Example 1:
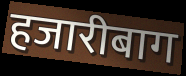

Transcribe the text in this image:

हजारीबाग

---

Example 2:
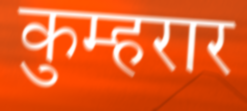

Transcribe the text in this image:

कुम्हरार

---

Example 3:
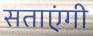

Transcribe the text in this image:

सताएंगी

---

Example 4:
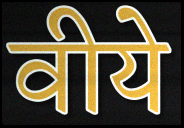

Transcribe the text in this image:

वीये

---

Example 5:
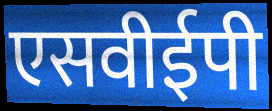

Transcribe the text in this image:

एसवीईपी